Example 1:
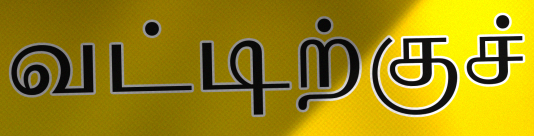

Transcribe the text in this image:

வட்டிற்குச்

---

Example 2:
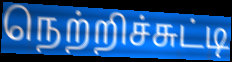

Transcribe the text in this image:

நெற்றிச்சுட்டி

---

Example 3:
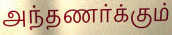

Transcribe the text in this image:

அந்தணர்க்கும்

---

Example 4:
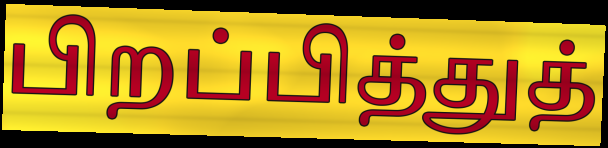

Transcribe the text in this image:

பிறப்பித்துத்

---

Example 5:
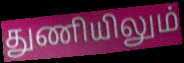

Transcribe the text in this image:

துணியிலும்